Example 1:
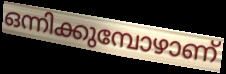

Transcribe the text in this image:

ഒന്നിക്കുമ്പോഴാണ്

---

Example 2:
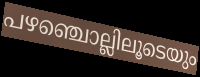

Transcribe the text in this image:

പഴഞ്ചൊല്ലിലൂടെയും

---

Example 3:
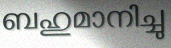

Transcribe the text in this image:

ബഹുമാനിച്ചു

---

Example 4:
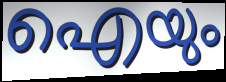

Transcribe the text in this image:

ഐയും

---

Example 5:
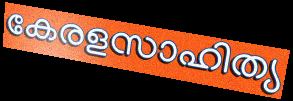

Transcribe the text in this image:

കേരളസാഹിത്യ